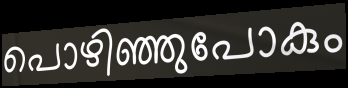
പൊഴിഞ്ഞുപോകും